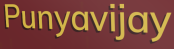
Punyavijay